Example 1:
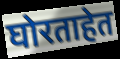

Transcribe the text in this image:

घोरताहेत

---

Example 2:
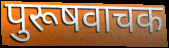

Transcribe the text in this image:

पुरूषवाचक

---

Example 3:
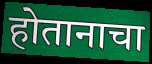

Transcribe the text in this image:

होतानाचा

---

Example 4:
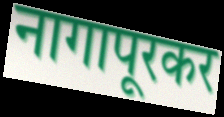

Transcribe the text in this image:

नागापूरकर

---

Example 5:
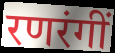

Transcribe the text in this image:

रणरंगीं